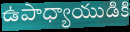
ఉపాధ్యాయుడికి